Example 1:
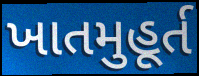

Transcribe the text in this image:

ખાતમુહૂર્ત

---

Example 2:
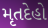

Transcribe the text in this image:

મૃતદેહો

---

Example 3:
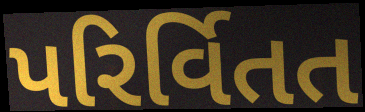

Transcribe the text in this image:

પરિર્વિતત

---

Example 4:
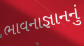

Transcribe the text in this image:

ભાવનાજ્ઞાનનું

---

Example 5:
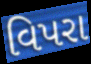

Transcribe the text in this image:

વિપરા